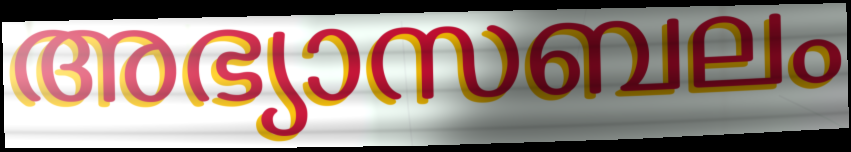
അഭ്യാസബലം